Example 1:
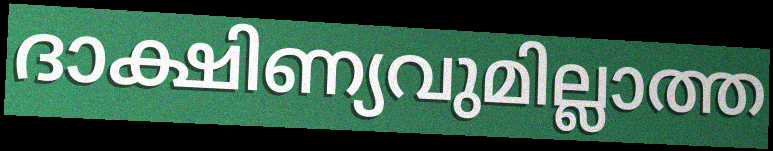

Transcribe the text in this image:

ദാക്ഷിണ്യവുമില്ലാത്ത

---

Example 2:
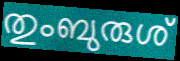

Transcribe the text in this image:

തുംബുരുശ്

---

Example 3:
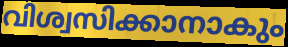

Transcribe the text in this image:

വിശ്വസിക്കാനാകും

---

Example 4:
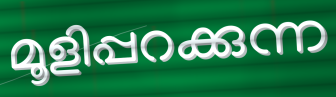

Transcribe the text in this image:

മൂളിപ്പറക്കുന്ന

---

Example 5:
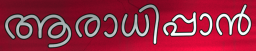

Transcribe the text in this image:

ആരാധിപ്പാൻ